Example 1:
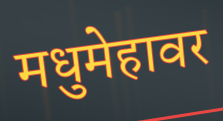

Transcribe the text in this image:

मधुमेहावर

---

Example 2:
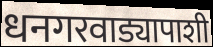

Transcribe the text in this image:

धनगरवाड्यापाशी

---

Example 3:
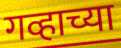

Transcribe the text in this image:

गव्हाच्या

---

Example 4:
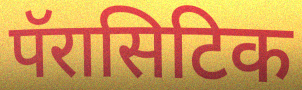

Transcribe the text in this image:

पॅरासिटिक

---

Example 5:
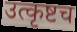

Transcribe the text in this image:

उत्कृष्टच